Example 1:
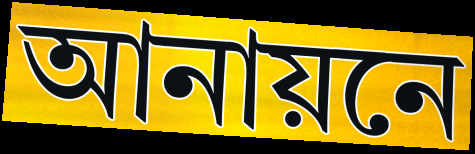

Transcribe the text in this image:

আনায়নে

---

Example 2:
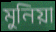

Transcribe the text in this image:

মুনিয়া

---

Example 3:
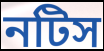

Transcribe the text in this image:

নটিস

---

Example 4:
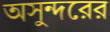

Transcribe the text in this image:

অসুন্দরের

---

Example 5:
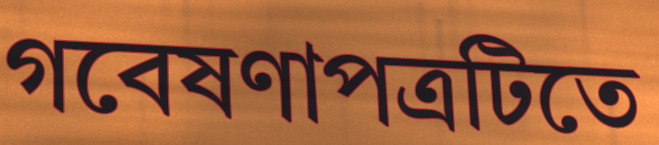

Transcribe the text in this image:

গবেষণাপত্রটিতে